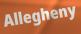
Allegheny